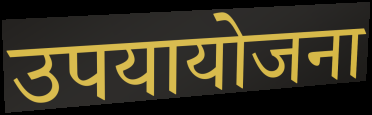
उपयायोजना